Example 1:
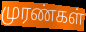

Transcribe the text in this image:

முரண்கள்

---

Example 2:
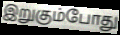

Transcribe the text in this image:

இறுகும்போது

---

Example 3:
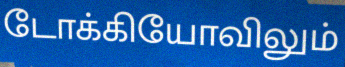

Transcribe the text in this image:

டோக்கியோவிலும்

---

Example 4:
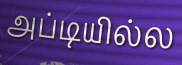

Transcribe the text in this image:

அப்டியில்ல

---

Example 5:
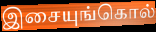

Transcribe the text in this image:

இசையுங்கொல்